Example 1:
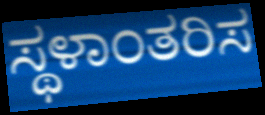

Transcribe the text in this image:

ಸ್ಥಳಾಂತರಿಸ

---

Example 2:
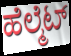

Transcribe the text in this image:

ಹೆಲ್ಮೆಟ್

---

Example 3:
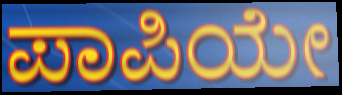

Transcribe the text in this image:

ಪಾಪಿಯೇ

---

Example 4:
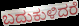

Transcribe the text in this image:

ಬದುಕುಳಿದರೆ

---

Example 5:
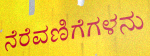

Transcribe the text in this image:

ನೆರೆವಣಿಗೆಗಳನು